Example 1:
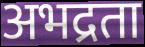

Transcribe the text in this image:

अभद्रता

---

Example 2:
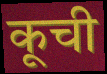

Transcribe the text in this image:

कूची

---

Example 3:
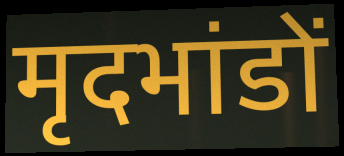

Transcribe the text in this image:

मृदभांडों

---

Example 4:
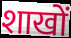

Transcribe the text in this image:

शाखों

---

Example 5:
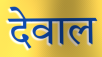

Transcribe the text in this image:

देवाल